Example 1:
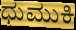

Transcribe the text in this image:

ಧುಮುಕಿ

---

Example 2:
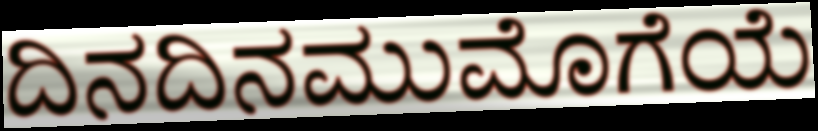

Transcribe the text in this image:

ದಿನದಿನಮುಮೊಗೆಯೆ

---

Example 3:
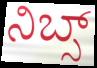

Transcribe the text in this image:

ನಿಬ್ಸ್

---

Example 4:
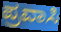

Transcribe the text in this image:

ಪ್ರವಾಸಿ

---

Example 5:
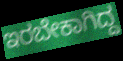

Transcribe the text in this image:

ಇರಬೇಕಾಗಿದ್ದ